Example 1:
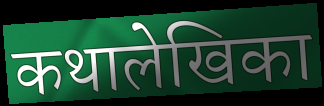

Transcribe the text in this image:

कथालेखिका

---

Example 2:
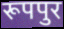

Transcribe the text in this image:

रूपपुर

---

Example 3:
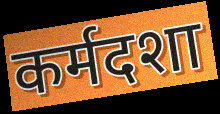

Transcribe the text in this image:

कर्मदशा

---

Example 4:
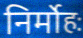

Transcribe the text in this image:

निर्मोहः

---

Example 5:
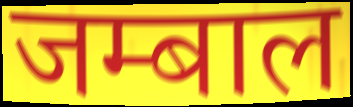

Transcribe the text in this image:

जम्बाल